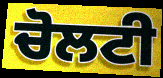
ਚੋਲਟੀ